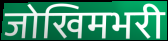
जोखिमभरी